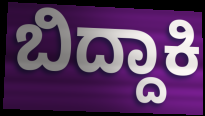
ಬಿದ್ದಾಕಿ